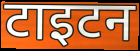
टाइटन